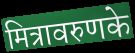
मित्रावरुणके